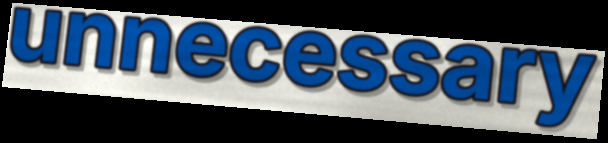
unnecessary